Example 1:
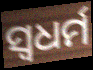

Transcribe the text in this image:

ସ୍ଵଧର୍ମ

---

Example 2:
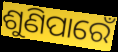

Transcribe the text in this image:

ଶୁଣିପାରେଁ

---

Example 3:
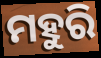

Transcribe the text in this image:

ମହୁରି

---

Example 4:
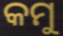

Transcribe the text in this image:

କମୁ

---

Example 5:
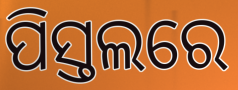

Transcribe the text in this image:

ପିସ୍ତଲରେ